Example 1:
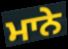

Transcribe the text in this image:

ਮਾਨੇ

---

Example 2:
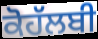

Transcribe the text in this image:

ਕੋਹੱਲਬੀ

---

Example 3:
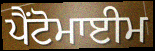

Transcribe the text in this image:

ਪੈਂਟੋਮਾਈਮ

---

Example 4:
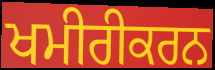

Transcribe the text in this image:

ਖਮੀਰੀਕਰਨ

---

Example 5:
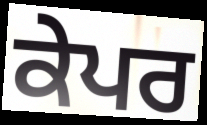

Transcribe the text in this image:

ਕੇਪਰ